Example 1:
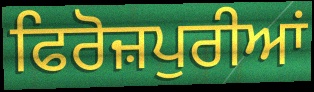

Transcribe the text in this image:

ਫਿਰੋਜ਼ਪੁਰੀਆਂ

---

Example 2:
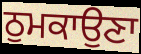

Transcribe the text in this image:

ਠੁਮਕਾਉਣਾ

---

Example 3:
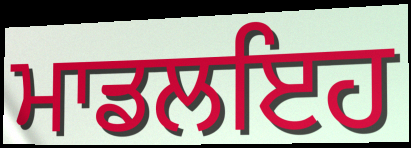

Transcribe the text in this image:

ਮਾਡਲਇਹ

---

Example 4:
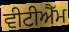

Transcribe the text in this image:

ਵੀਟੀਐੱਮ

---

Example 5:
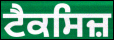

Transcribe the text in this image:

ਟੈਕਸਿਜ਼